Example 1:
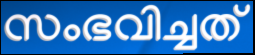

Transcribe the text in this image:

സംഭവിച്ചത്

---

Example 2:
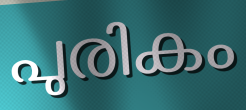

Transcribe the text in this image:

പുരികം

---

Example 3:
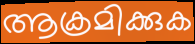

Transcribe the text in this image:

ആക്രമിക്കുക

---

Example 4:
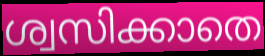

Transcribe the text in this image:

ശ്വസിക്കാതെ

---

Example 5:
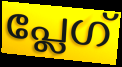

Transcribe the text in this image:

പ്ലേഗ്